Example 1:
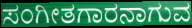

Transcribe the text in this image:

ಸಂಗೀತಗಾರನಾಗುವ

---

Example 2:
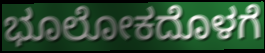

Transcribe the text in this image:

ಭೂಲೋಕದೊಳಗೆ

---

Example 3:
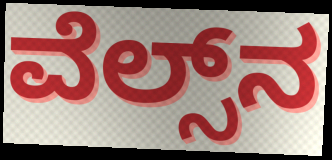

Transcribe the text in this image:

ವೆಲ್ಸ್‌ನ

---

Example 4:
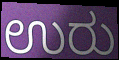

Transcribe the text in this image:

ಉರು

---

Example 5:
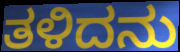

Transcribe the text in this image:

ತಳಿದನು